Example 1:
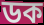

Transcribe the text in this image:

ডক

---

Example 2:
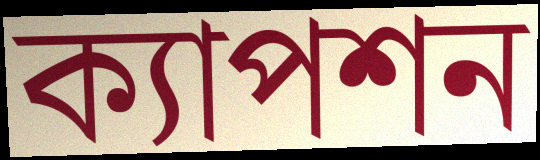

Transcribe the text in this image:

ক্যাপশন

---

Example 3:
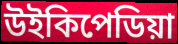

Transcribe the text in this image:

উইকিপেডিয়া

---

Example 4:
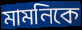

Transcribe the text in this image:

মামনিকে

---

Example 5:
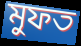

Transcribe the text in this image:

মুফত